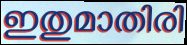
ഇതുമാതിരി